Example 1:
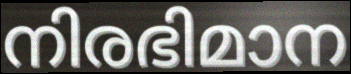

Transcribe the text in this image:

നിരഭിമാന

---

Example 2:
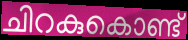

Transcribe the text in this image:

ചിറകുകൊണ്ട്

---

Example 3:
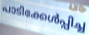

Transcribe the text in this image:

പാടിക്കേൾപ്പിച്ച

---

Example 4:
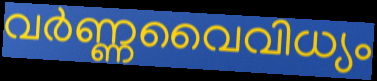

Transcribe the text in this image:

വർണ്ണവൈവിധ്യം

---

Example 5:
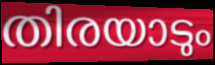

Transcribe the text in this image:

തിരയാടും